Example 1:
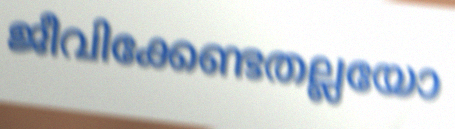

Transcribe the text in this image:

ജീവിക്കേണ്ടതല്ലയോ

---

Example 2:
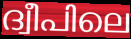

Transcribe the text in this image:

ദ്വീപിലെ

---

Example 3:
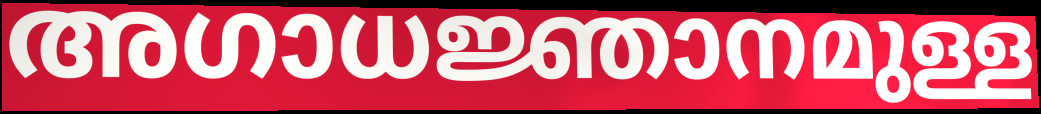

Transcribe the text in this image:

അഗാധജ്ഞാനമുള്ള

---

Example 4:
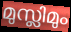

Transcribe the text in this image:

മുസ്ലിമും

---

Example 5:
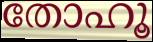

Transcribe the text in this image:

തോഹൂ